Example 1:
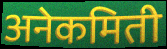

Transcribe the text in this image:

अनेकमिती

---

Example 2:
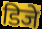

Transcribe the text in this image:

डिजे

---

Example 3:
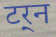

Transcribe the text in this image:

टर्न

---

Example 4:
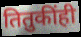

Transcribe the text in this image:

तितुकींही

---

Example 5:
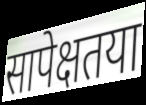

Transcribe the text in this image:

सापेक्षतया